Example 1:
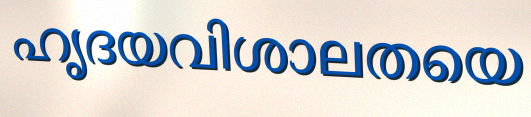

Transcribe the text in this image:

ഹൃദയവിശാലതയെ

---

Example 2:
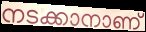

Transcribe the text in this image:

നടക്കാനാണ്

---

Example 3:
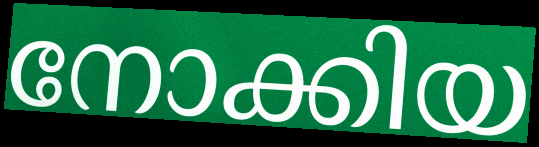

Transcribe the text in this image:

നോക്കിയ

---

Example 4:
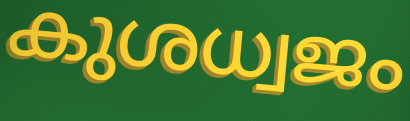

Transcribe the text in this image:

കുശധ്വജം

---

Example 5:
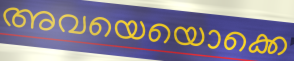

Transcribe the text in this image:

അവയെയൊക്കെ